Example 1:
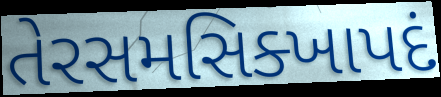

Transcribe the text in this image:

તેરસમસિક્ખાપદં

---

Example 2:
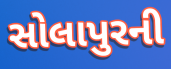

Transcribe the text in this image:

સોલાપુરની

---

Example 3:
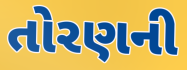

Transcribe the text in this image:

તોરણની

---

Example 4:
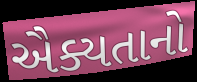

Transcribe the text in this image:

ઐક્યતાનો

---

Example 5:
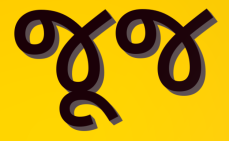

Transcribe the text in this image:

જૂજ